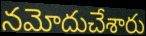
నమోదుచేశారు